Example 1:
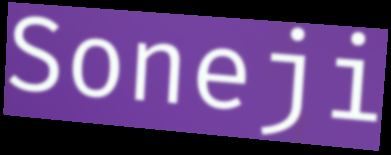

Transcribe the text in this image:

Soneji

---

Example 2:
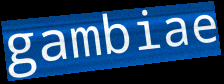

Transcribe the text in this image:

gambiae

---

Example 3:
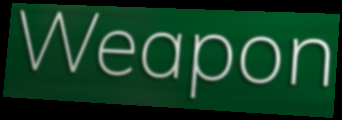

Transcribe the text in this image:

Weapon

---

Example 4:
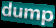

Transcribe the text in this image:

dump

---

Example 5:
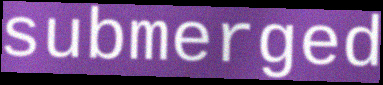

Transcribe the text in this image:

submerged